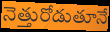
నెత్తురోడుతూనే